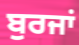
ਬੁਰਜਾਂ